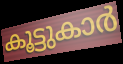
കൂട്ടുകാർ